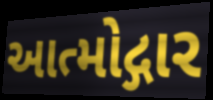
આત્મોદ્ગાર